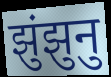
झुंझुनु